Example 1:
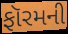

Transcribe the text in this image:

ફૉરમની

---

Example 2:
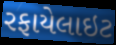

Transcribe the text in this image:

રફાયેલાઇટ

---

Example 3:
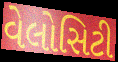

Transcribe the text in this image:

વેલોસિટી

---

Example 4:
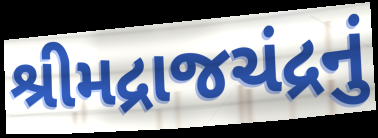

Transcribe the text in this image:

શ્રીમદ્રાજચંદ્રનું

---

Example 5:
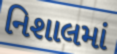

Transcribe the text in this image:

નિશાલમાં